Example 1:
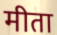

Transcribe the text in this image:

मीता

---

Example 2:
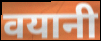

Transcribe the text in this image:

वयानी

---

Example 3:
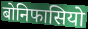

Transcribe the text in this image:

बोनिफासियो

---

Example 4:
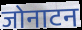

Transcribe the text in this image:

जोनाटन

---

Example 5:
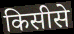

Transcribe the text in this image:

किसीसे